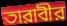
তারাবীর